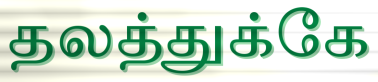
தலத்துக்கே